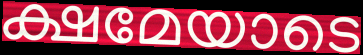
ക്ഷമേയാടെ